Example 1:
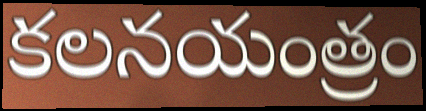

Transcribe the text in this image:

కలనయంత్రం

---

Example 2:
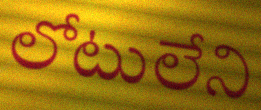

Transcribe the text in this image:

లోటులేని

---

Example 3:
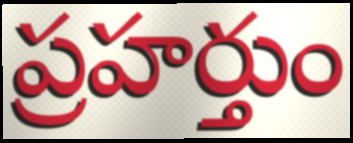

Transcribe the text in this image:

ప్రహర్తుం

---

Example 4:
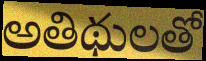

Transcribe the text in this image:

అతిథులతో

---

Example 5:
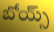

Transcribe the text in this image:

బోయ్స్